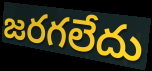
జరగలేదు